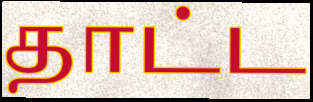
தாட்ட